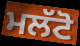
ਮਲੱਟੋ